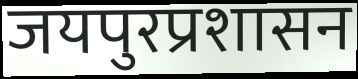
जयपुरप्रशासन